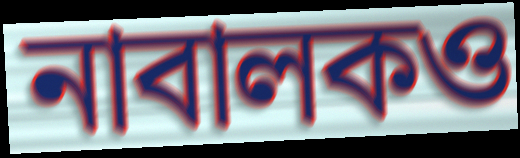
নাবালকও